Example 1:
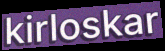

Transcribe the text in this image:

kirloskar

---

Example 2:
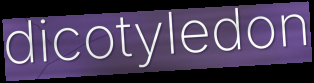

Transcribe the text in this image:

dicotyledon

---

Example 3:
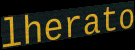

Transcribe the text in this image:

lherato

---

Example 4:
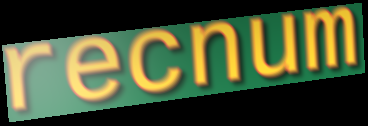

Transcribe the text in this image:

recnum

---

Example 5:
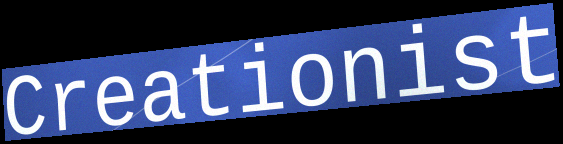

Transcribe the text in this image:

Creationist